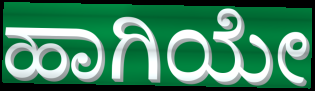
ಹಾಗಿಯೇ